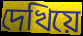
দেখিয়ে